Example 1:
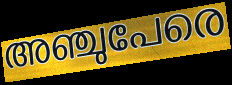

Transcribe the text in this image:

അഞ്ചുപേരെ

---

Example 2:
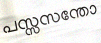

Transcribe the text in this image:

പസ്സസന്തോ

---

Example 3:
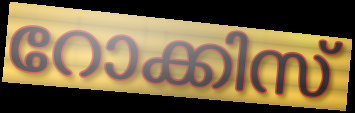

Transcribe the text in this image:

റോക്കിസ്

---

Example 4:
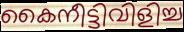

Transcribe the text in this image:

കൈനീട്ടിവിളിച്ച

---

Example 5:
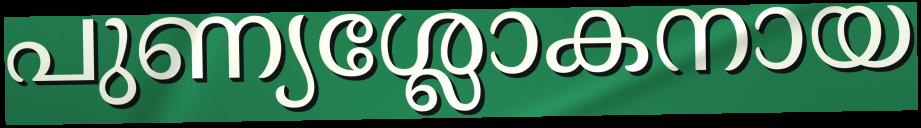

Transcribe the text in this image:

പുണ്യശ്ലോകനായ